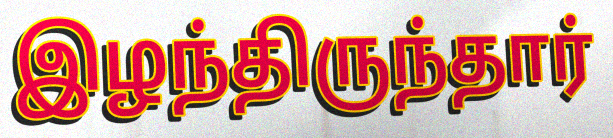
இழந்திருந்தார்